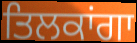
ਤਿਲਕਾਂਗਾ